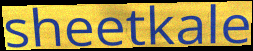
sheetkale